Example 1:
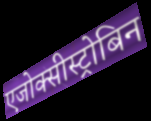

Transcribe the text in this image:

एजोक्सीस्ट्रोबिन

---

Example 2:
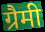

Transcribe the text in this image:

ग्रैमी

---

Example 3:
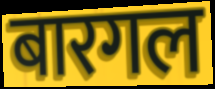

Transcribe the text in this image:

बारगल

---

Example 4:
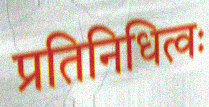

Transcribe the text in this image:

प्रतिनिधित्वः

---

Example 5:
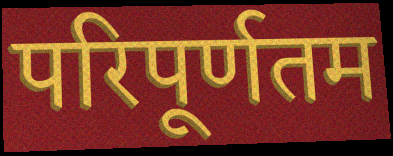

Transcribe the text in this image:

परिपूर्णतम